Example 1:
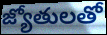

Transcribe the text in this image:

జ్యోతులతో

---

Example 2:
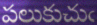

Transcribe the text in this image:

పలుకుచుఁ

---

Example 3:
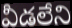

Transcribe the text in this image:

వీడలేని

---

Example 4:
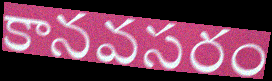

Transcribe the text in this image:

కానవసరం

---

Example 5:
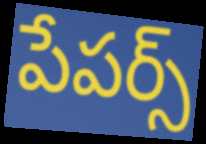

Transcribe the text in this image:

పేపర్స్